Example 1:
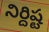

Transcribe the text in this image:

నిర్దిష్ట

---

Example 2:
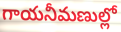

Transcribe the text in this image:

గాయనీమణుల్లో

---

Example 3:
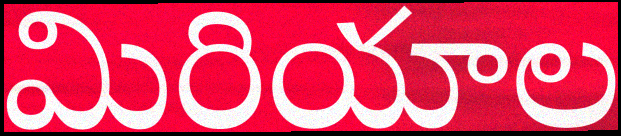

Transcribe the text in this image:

మిరియాల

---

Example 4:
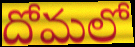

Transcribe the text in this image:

దోమలో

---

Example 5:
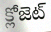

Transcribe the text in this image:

క్లోజెట్